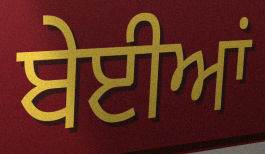
ਬੇਈਆਂ